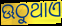
ଊଠୁଥାଏ